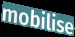
mobilise